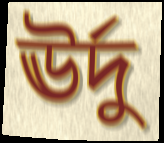
ঊর্দু